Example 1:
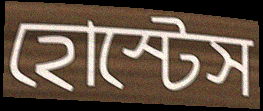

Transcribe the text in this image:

হোস্টেস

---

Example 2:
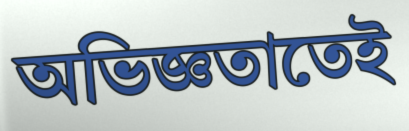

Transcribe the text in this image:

অভিজ্ঞতাতেই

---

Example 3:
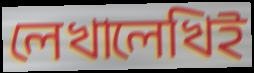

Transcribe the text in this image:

লেখালেখিই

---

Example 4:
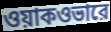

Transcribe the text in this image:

ওয়াকওভারে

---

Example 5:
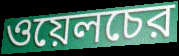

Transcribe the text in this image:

ওয়েলচের